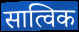
सात्विक